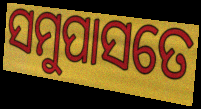
ସମୁପାସତେ